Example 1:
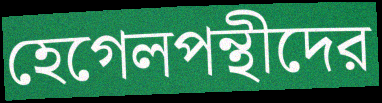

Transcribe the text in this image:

হেগেলপন্থীদের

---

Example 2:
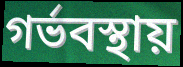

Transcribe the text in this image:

গর্ভবস্থায়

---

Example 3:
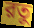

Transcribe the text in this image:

রতু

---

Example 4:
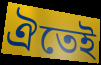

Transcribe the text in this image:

ঐতেই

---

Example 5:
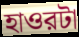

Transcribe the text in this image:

হাওরটা